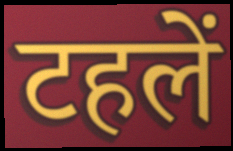
टहलें